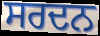
ਸਰਦਨ